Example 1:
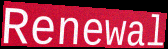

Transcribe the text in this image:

Renewal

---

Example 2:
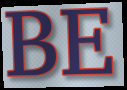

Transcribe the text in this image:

BE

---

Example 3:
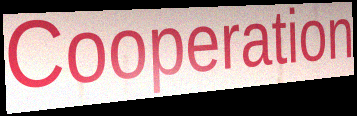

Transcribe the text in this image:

Cooperation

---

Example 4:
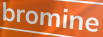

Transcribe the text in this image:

bromine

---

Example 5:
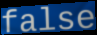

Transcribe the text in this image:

false